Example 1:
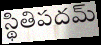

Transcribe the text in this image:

స్థితిపదమ్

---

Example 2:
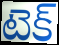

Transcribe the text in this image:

టెక్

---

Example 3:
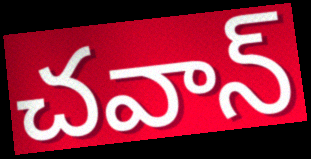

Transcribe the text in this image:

చవాన్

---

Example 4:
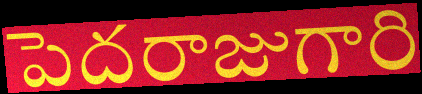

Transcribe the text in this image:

పెదరాజుగారి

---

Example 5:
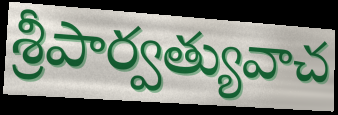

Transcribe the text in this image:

శ్రీపార్వత్యువాచ